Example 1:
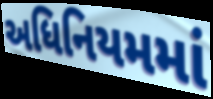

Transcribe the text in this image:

અધિનિયમમાં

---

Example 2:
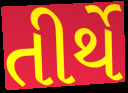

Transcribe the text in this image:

તીર્થે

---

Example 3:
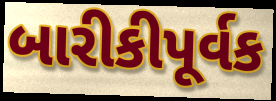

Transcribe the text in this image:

બારીકીપૂર્વક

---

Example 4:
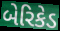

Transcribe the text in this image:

બેરિકેડ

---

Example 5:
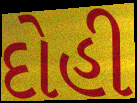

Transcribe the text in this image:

દોહી